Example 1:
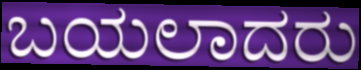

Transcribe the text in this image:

ಬಯಲಾದರು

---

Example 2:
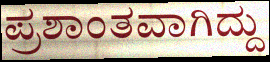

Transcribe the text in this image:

ಪ್ರಶಾಂತವಾಗಿದ್ದು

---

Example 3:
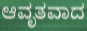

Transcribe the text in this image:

ಆವೃತವಾದ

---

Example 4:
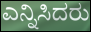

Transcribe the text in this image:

ಎನ್ನಿಸಿದರು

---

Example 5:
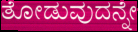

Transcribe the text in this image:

ತೋಡುವುದನ್ನೇ